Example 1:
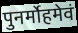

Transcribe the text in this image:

पुनर्मोहमेवं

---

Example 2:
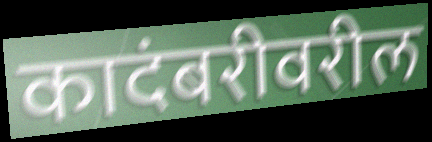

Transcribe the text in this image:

कादंबरीवरील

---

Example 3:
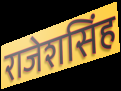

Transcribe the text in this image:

राजेशसिंह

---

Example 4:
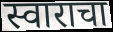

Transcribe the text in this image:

स्वाराचा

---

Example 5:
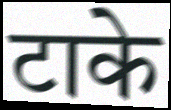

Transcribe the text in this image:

टाके